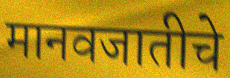
मानवजातीचे